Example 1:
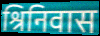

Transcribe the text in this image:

श्रिनिवास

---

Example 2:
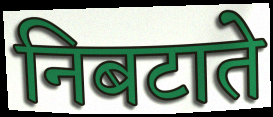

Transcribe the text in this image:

निबटाते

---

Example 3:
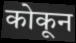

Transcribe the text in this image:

कोकून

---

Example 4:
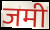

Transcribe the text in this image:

जमी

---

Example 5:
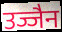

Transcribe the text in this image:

उज्जैन